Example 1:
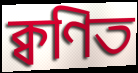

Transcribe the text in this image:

ক্বণিত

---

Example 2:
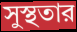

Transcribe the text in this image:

সুস্থতার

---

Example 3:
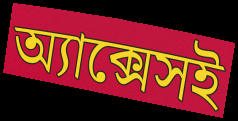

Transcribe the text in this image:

অ্যাক্সেসই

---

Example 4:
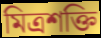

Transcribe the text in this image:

মিত্রশক্তি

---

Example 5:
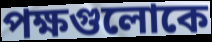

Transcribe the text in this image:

পক্ষগুলোকে